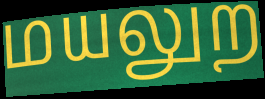
மயலுற